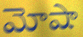
మోషా